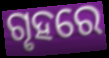
ଗୃହରେ